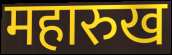
महारुख